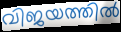
വിജയത്തിൽ